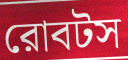
রোবটস